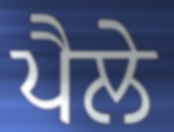
ਪੈਲੇ